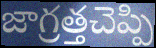
జాగ్రత్తచెప్పి